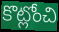
కొట్లోంచి